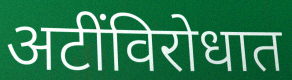
अटींविरोधात